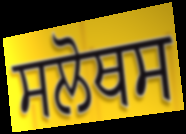
ਸਲੋਥਸ